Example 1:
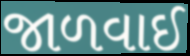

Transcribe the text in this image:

જાળવાઈ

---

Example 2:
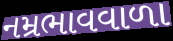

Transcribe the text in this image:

નમ્રભાવવાળા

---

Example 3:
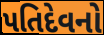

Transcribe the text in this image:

પતિદેવનો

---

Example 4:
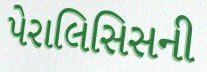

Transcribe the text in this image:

પેરાલિસિસની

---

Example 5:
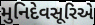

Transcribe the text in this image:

મુનિદેવસૂરિએ